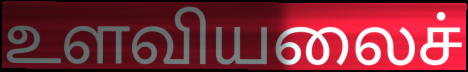
உளவியலைச்